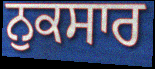
ਨੁਕਸਾਰ